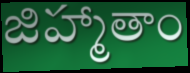
జిహ్మాతాం